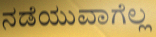
ನಡೆಯುವಾಗೆಲ್ಲ